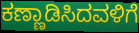
ಕಣ್ಣಾಡಿಸಿದವಳಿಗೆ